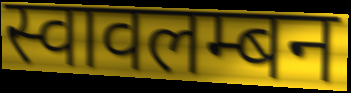
स्वावलम्बन